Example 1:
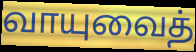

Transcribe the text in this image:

வாயுவைத்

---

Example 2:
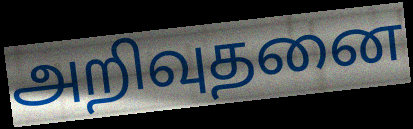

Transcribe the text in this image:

அறிவுதனை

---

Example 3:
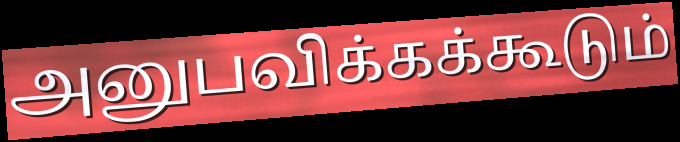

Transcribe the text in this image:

அனுபவிக்கக்கூடும்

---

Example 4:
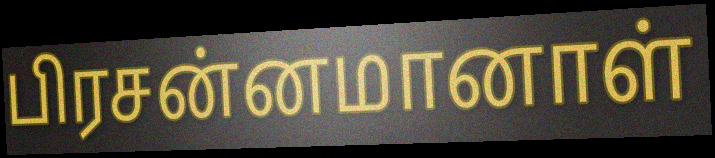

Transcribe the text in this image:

பிரசன்னமானாள்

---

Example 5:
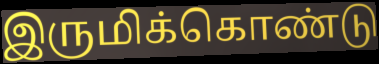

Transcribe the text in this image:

இருமிக்கொண்டு